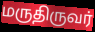
மருதிருவர்